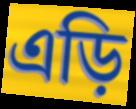
এড়ি